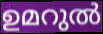
ഉമറുൽ